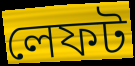
লেফট